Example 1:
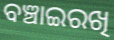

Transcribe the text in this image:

ବଞ୍ଚାଇରଖି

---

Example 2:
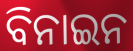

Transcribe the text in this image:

ବିନାଇନ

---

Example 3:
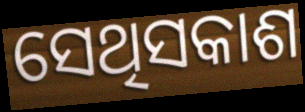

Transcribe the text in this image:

ସେଥିସକାଶ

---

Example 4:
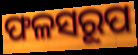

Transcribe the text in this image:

ଫଳସରୂପ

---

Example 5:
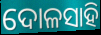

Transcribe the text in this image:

ଦୋଳସାହି